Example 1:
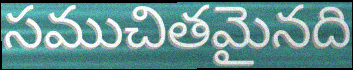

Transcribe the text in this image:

సముచితమైనది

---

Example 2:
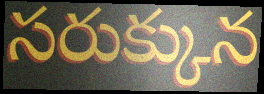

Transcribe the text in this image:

సరుక్కున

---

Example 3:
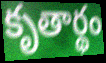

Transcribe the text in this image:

కృతార్థం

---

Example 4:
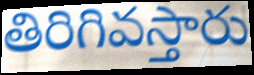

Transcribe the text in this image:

తిరిగివస్తారు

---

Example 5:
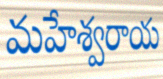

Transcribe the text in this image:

మహేశ్వరాయ